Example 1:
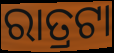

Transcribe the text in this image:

ରାତ୍ରଟା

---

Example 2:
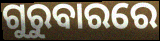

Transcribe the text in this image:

ଗୁରୁବାରରେ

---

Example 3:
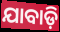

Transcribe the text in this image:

ଯାବାଡ଼ି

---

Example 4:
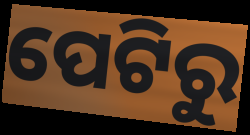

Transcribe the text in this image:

ପେଟିରୁ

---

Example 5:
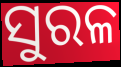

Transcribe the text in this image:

ସୁରଳ